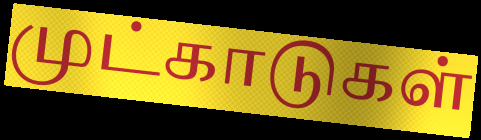
முட்காடுகள்